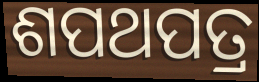
ଶପଥପତ୍ର